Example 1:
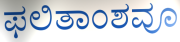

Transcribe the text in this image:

ಫಲಿತಾಂಶವೂ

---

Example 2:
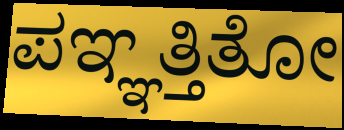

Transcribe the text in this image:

ಪಞ್ಞತ್ತಿತೋ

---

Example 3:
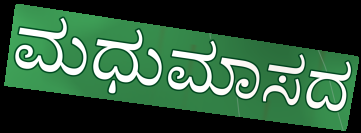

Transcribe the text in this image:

ಮಧುಮಾಸದ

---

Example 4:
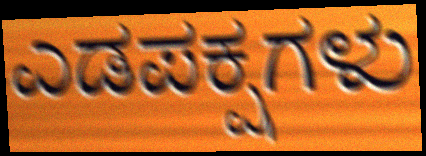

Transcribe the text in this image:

ಎಡಪಕ್ಷಗಳು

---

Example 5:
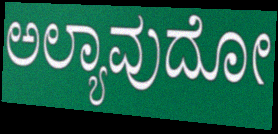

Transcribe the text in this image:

ಅಲ್ಯಾವುದೋ